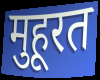
मुहूरत